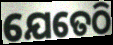
ଯେତେଠି